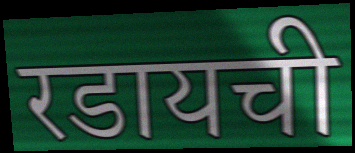
रडायची